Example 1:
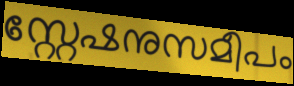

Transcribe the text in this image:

സ്റ്റേഷനുസമീപം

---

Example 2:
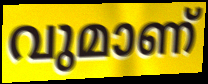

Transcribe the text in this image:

വുമാണ്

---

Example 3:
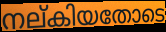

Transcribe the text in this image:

നല്കിയതോടെ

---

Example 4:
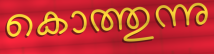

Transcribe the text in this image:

കൊത്തുന്നു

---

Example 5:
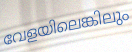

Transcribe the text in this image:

വേളയിലെങ്കിലും